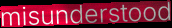
misunderstood